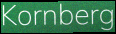
Kornberg